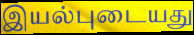
இயல்புடையது